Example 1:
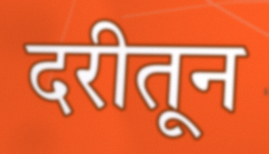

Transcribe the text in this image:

दरीतून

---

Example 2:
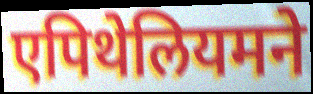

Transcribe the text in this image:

एपिथेलियमने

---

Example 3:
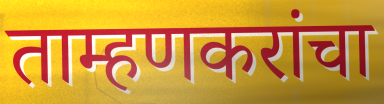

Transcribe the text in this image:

ताम्हणकरांचा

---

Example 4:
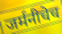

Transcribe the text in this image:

जर्मनीचेच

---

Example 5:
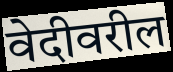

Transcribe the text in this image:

वेदीवरील